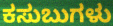
ಕಸುಬುಗಳು